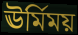
ঊর্মিময়